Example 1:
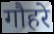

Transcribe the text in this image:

गौहरे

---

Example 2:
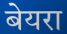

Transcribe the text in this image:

बेयरा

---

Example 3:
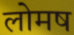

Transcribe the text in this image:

लोमष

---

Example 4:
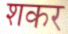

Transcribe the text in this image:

शकर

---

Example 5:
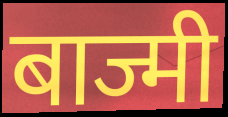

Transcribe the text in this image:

बाज्मी